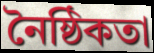
নৈষ্ঠিকতা